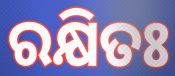
ରକ୍ଷିତଃ